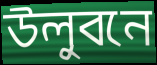
উলুবনে